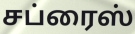
சப்ரைஸ்